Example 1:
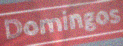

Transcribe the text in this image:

Domingos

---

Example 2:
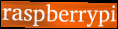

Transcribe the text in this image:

raspberrypi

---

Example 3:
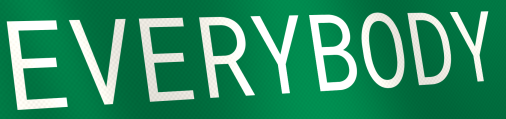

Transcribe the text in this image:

EVERYBODY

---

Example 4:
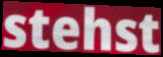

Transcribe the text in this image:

stehst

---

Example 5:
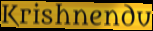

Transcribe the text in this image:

Krishnendu